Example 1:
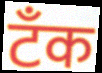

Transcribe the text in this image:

टॅंक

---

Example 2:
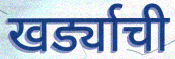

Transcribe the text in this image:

खर्ड्याची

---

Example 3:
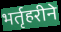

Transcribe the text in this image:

भर्तृहरीने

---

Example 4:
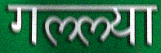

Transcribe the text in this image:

गल्ल्या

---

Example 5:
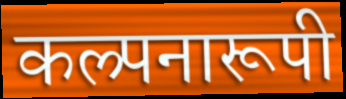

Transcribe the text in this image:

कल्पनारूपी